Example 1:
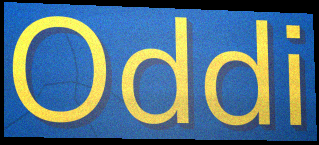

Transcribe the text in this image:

Oddi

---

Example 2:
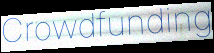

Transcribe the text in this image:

Crowdfunding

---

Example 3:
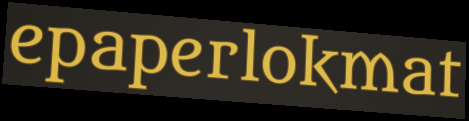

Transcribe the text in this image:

epaperlokmat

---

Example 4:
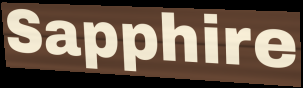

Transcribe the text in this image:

Sapphire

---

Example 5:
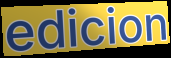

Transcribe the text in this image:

edicion